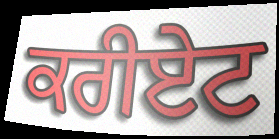
ਕਰੀਏਟ